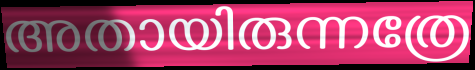
അതായിരുന്നത്രേ